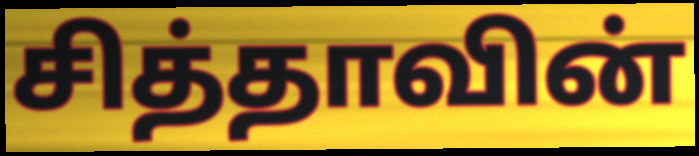
சித்தாவின்